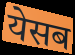
येसब